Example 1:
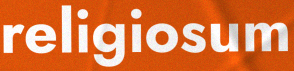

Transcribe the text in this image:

religiosum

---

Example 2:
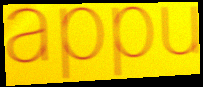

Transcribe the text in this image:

appu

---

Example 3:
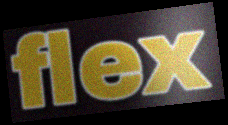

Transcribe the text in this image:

flex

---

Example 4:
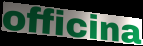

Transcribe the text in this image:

officina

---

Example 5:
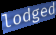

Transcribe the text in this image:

lodged